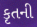
કૃતની